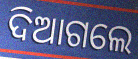
ଦିଆଗଲେ